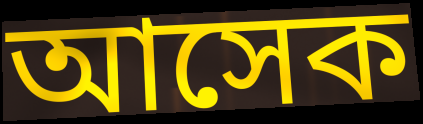
আসেক